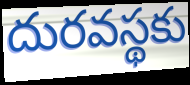
దురవస్థకు